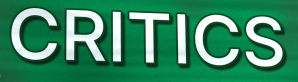
CRITICS